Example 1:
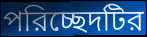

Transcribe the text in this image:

পরিচ্ছেদটির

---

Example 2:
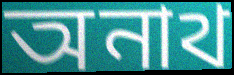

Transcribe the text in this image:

অনাথ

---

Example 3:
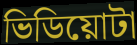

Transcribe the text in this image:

ভিডিয়োটা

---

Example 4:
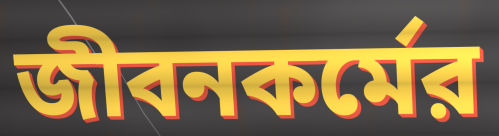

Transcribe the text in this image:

জীবনকর্মের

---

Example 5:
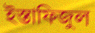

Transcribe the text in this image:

ইস্তাফিজুল